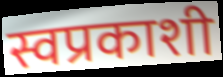
स्वप्रकाशी